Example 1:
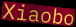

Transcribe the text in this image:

Xiaobo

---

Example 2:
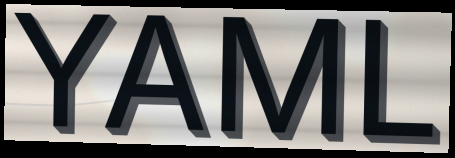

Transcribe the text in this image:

YAML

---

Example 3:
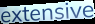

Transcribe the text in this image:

extensive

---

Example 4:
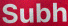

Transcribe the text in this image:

Subh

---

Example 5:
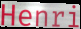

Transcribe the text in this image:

Henri